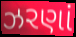
ઝરણાં